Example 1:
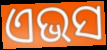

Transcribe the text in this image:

ଏଭସ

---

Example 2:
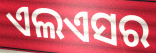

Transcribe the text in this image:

ଏଲଏସର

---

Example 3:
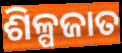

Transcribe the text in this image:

ଶିଳ୍ପଜାତ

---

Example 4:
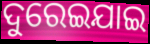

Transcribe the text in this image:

ଦୁରେଇଯାଇ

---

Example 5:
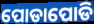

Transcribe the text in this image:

ପୋଡାପୋଡି